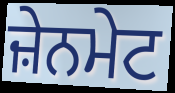
ਜ਼ੇਨਮੇਟ